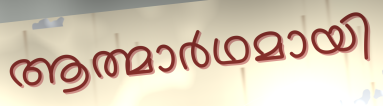
ആത്മാർഥമായി